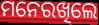
ମନେରଖିଲେ